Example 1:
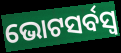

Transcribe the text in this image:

ଭୋଟସର୍ବସ୍ବ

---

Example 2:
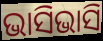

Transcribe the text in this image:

ଭାସିଭାସି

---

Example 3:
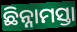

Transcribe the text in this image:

ଛିନ୍ନାମସ୍ତା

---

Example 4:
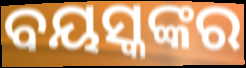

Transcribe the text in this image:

ବୟସ୍କଙ୍କର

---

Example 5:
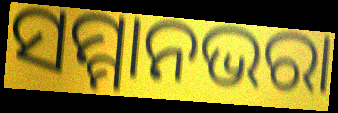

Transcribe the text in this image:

ସମ୍ମାନଭରା